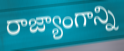
రాజ్యాంగాన్ని